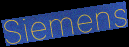
Siemens